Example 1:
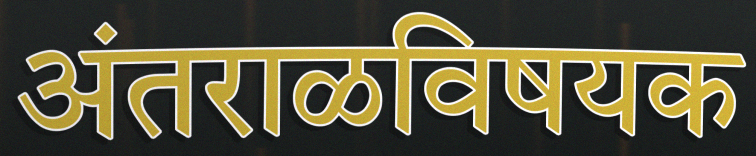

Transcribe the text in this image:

अंतराळविषयक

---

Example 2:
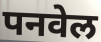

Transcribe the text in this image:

पनवेल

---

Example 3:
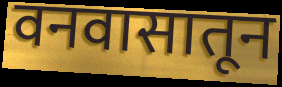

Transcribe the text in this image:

वनवासातून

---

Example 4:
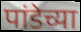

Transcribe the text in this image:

पांडेच्या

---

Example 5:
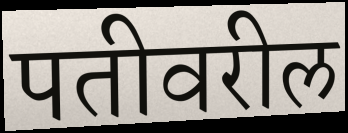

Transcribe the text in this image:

पतीवरील